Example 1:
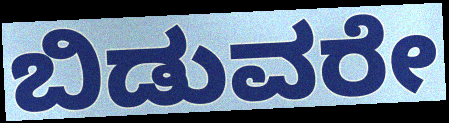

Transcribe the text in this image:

ಬಿಡುವರೇ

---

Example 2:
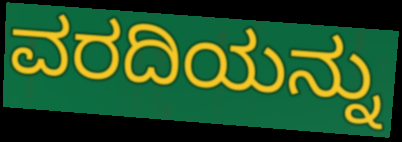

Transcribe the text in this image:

ವರದಿಯನ್ನು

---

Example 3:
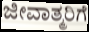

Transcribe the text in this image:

ಜೀವಾತ್ಮರಿಗೆ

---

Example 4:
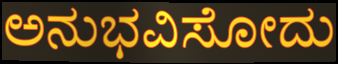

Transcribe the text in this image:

ಅನುಭವಿಸೋದು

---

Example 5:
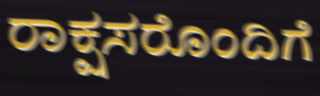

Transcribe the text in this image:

ರಾಕ್ಷಸರೊಂದಿಗೆ